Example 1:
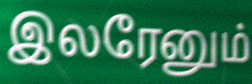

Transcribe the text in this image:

இலரேனும்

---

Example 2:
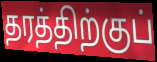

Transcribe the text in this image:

தரத்திற்குப்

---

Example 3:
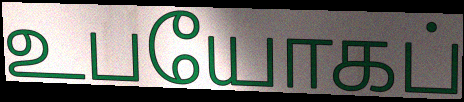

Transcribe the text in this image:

உபயோகப்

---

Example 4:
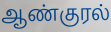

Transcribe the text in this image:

ஆண்குரல்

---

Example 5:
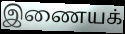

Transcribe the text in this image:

இணையக்